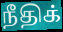
நீதிக்